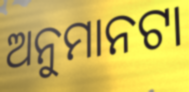
ଅନୁମାନଟା